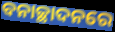
ବନାଚ୍ଛାଦନରେ